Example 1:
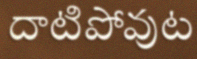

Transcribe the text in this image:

దాటిపోవుట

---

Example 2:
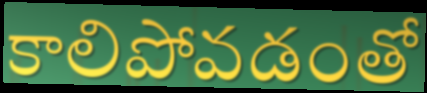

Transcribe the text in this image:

కాలిపోవడంతో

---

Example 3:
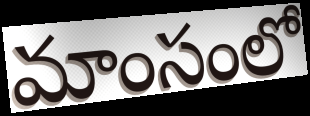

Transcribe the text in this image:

మాంసంలో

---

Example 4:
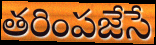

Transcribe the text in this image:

తరింపజేసే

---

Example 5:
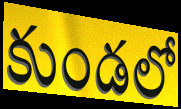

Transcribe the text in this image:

కుండలో